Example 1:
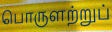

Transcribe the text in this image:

பொருளற்றுப்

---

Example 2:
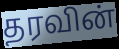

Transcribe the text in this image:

தரவின்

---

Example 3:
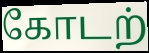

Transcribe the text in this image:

கோடற்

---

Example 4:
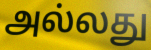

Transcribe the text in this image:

அல்லது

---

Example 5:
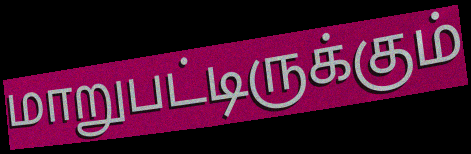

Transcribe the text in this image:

மாறுபட்டிருக்கும்